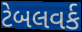
ટેબલવર્ક